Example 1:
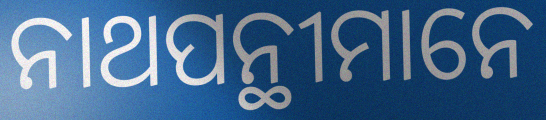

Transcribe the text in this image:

ନାଥପନ୍ଥୀମାନେ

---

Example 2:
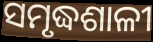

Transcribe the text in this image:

ସମୃଦ୍ଧଶାଳୀ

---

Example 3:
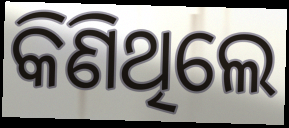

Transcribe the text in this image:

କିଣିଥିଲେ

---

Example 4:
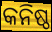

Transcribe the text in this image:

କନିଷ୍ଠ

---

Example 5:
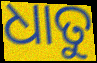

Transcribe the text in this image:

ଧାତୁ